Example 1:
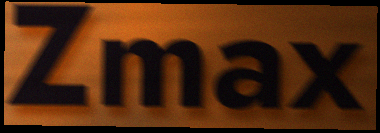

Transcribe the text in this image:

Zmax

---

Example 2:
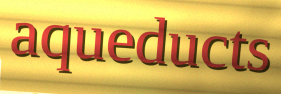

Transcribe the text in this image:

aqueducts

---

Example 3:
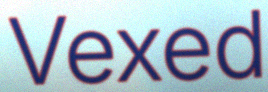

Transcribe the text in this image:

Vexed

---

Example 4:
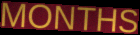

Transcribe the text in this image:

MONTHS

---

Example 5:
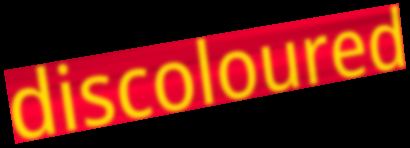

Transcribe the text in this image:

discoloured